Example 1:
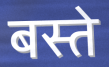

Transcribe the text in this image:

बस्ते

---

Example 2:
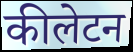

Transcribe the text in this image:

कीलेटन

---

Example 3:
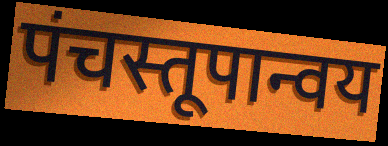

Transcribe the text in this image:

पंचस्तूपान्वय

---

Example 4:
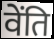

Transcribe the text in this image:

वेंति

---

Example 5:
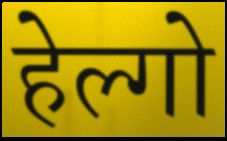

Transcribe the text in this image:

हेल्गो